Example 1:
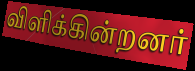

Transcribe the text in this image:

விளிக்கின்றனர்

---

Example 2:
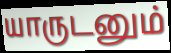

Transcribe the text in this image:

யாருடனும்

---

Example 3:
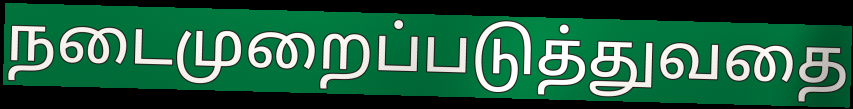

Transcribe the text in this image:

நடைமுறைப்படுத்துவதை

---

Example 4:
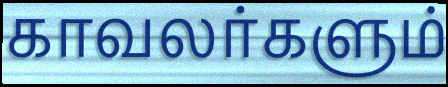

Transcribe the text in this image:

காவலர்களும்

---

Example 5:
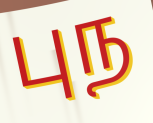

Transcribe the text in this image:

புந